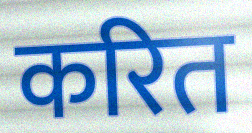
करित